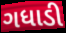
ગધાડી